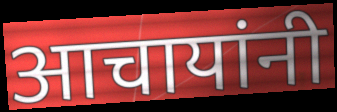
आचायांनी